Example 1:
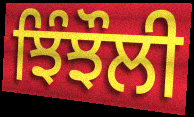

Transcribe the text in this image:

ਝਿੰਝੌਲੀ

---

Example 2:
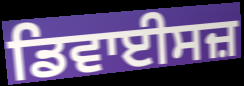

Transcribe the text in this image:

ਡਿਵਾਈਸਜ਼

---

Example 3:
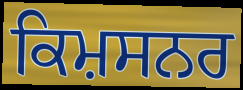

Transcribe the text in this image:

ਕਿਮ਼ਸਨਰ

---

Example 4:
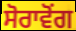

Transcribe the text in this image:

ਸੋਰਾਵੋਂਗ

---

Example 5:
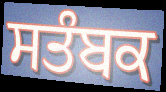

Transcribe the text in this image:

ਸਤੰਬਕ